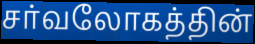
சர்வலோகத்தின்